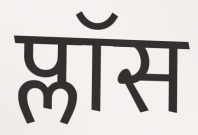
प्लॉस